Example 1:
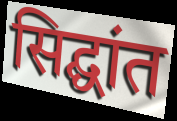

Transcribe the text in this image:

सिद्घांत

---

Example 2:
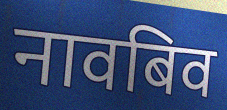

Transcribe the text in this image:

नावबिव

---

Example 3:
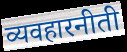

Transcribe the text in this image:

व्यवहारनीती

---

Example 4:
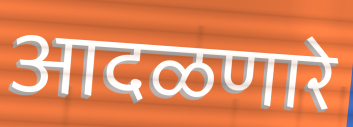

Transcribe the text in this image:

आदळणारे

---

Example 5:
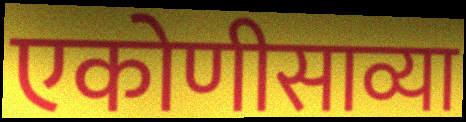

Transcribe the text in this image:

एकोणीसाव्या